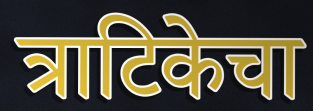
त्राटिकेचा